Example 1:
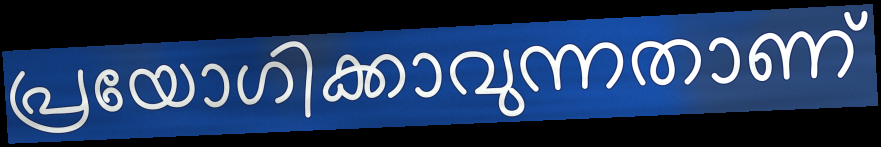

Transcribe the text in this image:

പ്രയോഗിക്കാവുന്നതാണ്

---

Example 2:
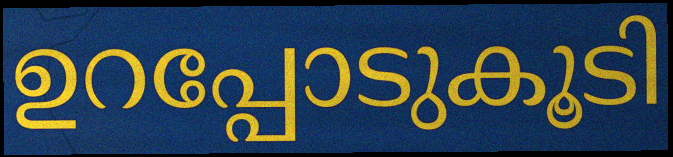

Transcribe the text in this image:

ഉറപ്പോടുകൂടി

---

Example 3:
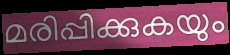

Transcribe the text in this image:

മരിപ്പിക്കുകയും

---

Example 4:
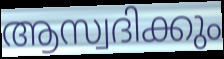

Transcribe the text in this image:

ആസ്വദിക്കും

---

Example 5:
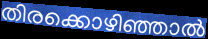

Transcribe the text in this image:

തിരക്കൊഴിഞ്ഞാൽ